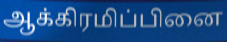
ஆக்கிரமிப்பினை